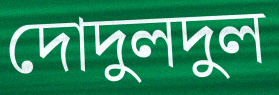
দোদুলদুল